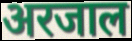
अरजाल